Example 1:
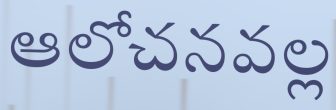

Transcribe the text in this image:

ఆలోచనవల్ల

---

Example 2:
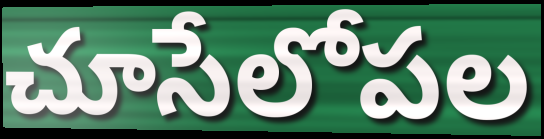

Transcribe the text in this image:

చూసేలోపల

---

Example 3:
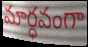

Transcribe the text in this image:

మార్ధవంగా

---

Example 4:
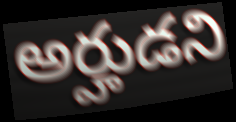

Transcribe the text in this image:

అర్హుడని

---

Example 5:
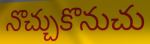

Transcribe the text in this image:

నొచ్చుకొనుచు